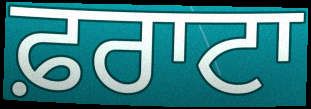
ਫ਼ਰਾਟਾ